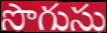
సొగుసు